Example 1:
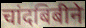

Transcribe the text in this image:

चांदबिबीने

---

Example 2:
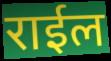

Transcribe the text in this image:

राईल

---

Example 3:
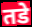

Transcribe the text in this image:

तडे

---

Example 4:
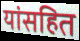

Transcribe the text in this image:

यांसहित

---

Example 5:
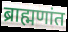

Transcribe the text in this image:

ब्राह्मणांत